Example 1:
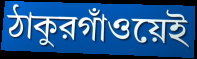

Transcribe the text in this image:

ঠাকুরগাঁওয়েই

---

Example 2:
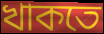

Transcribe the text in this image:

খাকতে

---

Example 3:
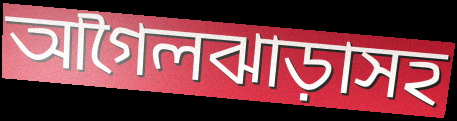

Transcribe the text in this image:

আগৈলঝাড়াসহ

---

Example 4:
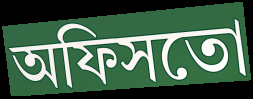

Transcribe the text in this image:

অফিসতো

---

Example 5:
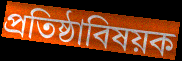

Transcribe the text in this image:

প্রতিষ্ঠাবিষয়ক